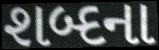
શબ્દના